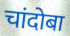
चांदोबा